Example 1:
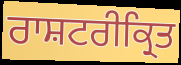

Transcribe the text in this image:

ਰਾਸ਼ਟਰੀਕ੍ਰਿਤ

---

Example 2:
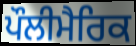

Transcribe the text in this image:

ਪੌਲੀਮੈਰਿਕ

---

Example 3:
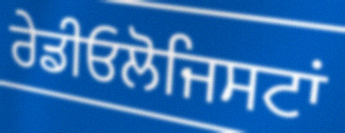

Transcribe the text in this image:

ਰੇਡੀਓਲੋਜਿਸਟਾਂ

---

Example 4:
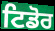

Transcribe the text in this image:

ਟਿਡੋਰ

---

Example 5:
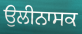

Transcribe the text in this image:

ਉਲੀਨਾਸਕ